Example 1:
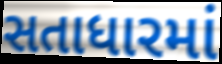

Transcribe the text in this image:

સતાધારમાં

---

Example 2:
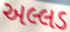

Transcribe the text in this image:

અલ્લડ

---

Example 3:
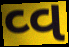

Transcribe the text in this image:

વ્વ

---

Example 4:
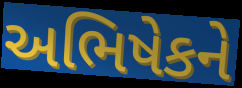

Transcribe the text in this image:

અભિષેકને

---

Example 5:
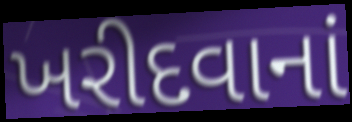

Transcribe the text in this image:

ખરીદવાનાં